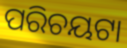
ପରିଚୟଟା